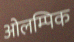
ओलम्पिक